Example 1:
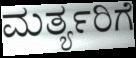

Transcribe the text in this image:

ಮರ್ತ್ಯರಿಗೆ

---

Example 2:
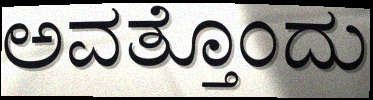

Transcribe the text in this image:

ಅವತ್ತೊಂದು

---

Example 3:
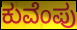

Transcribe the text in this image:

ಕುವೆಂಪು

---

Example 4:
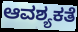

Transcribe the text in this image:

ಆವಶ್ಯಕತೆ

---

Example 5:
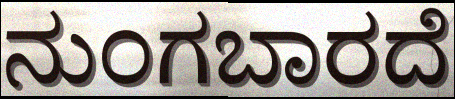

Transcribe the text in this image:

ನುಂಗಬಾರದೆ